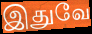
இதுவே